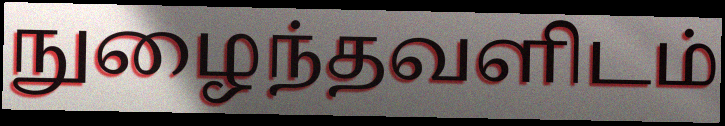
நுழைந்தவளிடம்